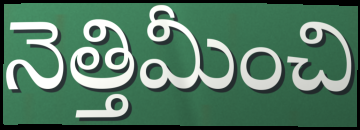
నెత్తిమీంచి